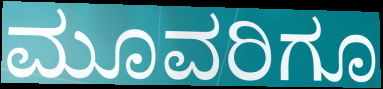
ಮೂವರಿಗೂ